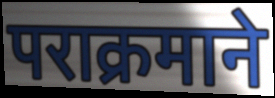
पराक्रमाने